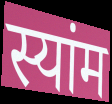
स्यांम